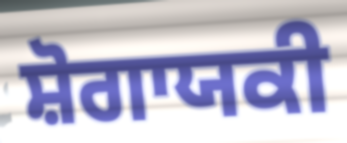
ਸ਼ੋਗਾਯਕੀ